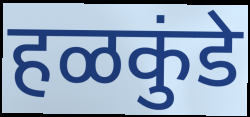
हळकुंडे